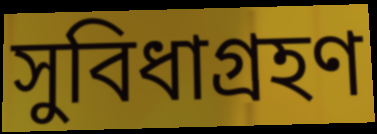
সুবিধাগ্রহণ